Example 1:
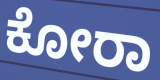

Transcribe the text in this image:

ಕೋರಾ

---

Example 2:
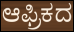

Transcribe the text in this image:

ಆಫ್ರಿಕದ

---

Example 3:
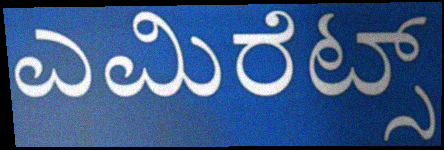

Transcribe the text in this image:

ಎಮಿರೆಟ್ಸ್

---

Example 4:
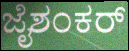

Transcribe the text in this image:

ಜೈಶಂಕರ್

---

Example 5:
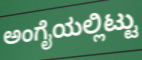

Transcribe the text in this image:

ಅಂಗೈಯಲ್ಲಿಟ್ಟು